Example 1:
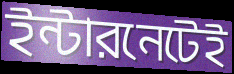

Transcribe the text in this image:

ইন্টারনেটেই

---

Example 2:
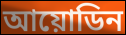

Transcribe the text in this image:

আয়োডিন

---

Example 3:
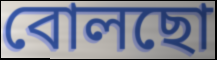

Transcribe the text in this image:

বোলছো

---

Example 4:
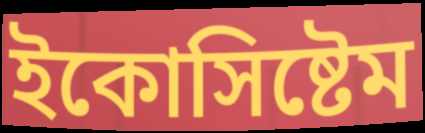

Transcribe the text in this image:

ইকোসিষ্টেম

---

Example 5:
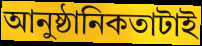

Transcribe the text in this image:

আনুষ্ঠানিকতাটাই